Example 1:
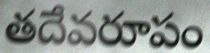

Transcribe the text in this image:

తదేవరూపం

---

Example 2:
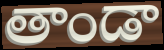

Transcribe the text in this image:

తాండా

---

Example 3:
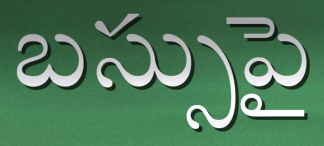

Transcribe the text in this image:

బస్సుపై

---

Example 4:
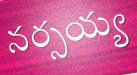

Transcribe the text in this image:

నర్సయ్య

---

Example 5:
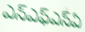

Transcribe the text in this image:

ఎన్ఎఫ్ఎస్ఏ